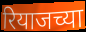
रियाजच्या